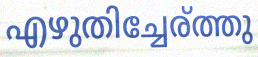
എഴുതിച്ചേര്ത്തു